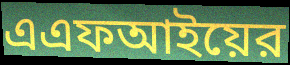
এএফআইয়ের